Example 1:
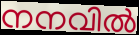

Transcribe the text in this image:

നനവിൽ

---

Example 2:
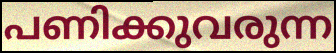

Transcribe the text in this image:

പണിക്കുവരുന്ന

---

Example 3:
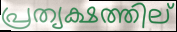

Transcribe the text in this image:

പ്രത്യക്ഷത്തില്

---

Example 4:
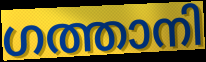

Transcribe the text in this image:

ഗത്താനി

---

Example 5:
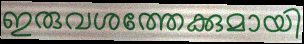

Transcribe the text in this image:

ഇരുവശത്തേക്കുമായി